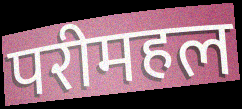
परीमहल